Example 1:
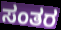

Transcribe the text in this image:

ಸಂತರ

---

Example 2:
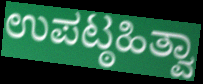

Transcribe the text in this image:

ಉಪಟ್ಠಹಿತ್ವಾ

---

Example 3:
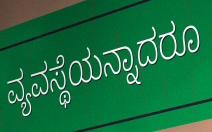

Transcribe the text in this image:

ವ್ಯವಸ್ಥೆಯನ್ನಾದರೂ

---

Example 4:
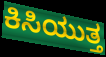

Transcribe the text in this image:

ಕಿಸಿಯುತ್ತ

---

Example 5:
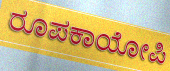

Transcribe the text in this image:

ರೂಪಕಾಯೋಪಿ